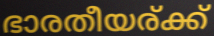
ഭാരതീയര്ക്ക്